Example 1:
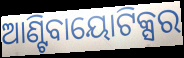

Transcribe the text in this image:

ଆଣ୍ଟିବାୟୋଟିକ୍ସର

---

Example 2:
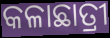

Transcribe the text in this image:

କଳାଛାତ୍ରୀ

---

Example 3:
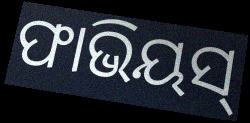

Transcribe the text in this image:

ଫାଭିୟସ୍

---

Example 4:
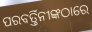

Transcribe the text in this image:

ପରବର୍ତ୍ତିନୀଙ୍କଠାରେ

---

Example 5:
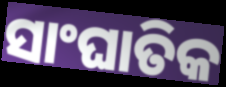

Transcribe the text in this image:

ସାଂଘାତିକ